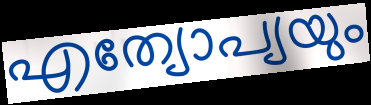
എത്യോപ്യയും